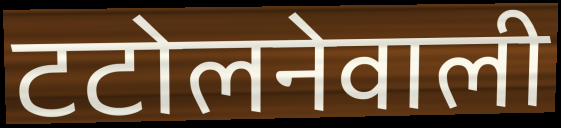
टटोलनेवाली